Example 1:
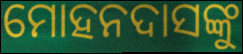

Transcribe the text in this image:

ମୋହନଦାସଙ୍କୁ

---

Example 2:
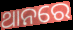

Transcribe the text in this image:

ଥାନରେ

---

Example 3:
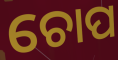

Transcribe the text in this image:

ଚୋପ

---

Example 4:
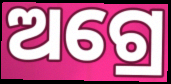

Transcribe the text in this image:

ଅଗ୍ରେ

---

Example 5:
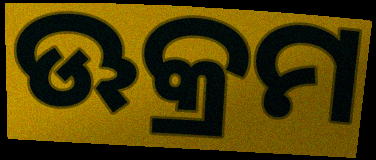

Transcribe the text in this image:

ଊକ୍ରମ